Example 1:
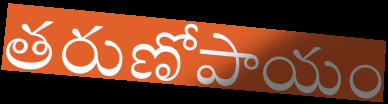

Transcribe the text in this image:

తరుణోపాయం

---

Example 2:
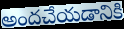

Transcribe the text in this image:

అందచేయడానికి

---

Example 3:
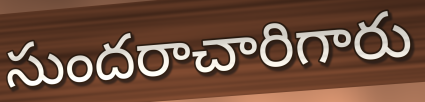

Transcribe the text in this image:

సుందరాచారిగారు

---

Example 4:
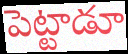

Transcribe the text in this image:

పెట్టాడూ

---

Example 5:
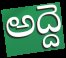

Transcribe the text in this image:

అద్దె